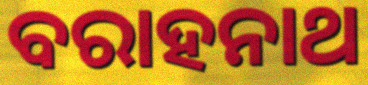
ବରାହନାଥ